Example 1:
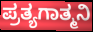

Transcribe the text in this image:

ಪ್ರತ್ಯಗಾತ್ಮನಿ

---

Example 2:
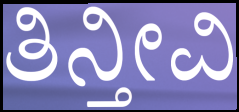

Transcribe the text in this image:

ತಿನ್ತೀವಿ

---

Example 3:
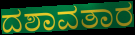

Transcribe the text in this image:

ದಶಾವತಾರ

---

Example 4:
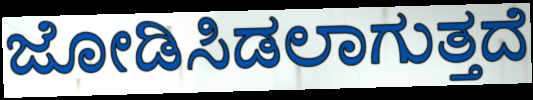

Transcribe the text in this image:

ಜೋಡಿಸಿಡಲಾಗುತ್ತದೆ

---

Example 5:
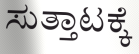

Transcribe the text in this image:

ಸುತ್ತಾಟಕ್ಕೆ